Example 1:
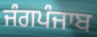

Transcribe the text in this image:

ਜੰਗਪੰਜਾਬ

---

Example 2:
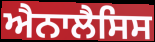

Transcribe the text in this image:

ਐਨਾਲੈਸਿਸ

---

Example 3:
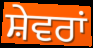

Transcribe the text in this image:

ਸ਼ੇਵਰਾਂ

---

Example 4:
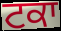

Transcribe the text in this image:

ਟਕਾ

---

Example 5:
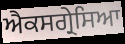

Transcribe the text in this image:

ਐਕਸਗ੍ਰੇਸਿਆ